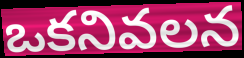
ఒకనివలన